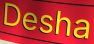
Desha